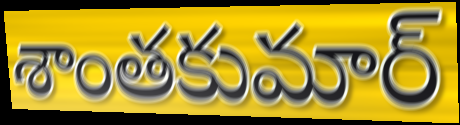
శాంతకుమార్